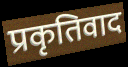
प्रकृतिवाद